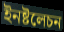
ইনষ্টলেচন